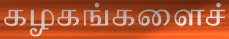
கழகங்களைச்